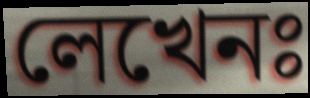
লেখেনঃ